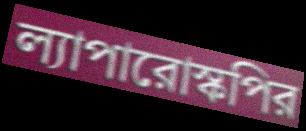
ল্যাপারোস্কপির